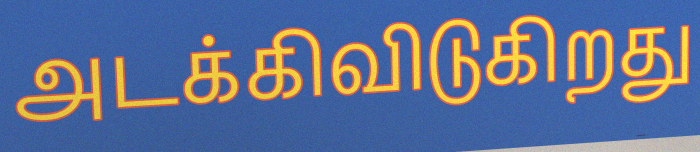
அடக்கிவிடுகிறது